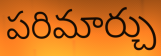
పరిమార్చు